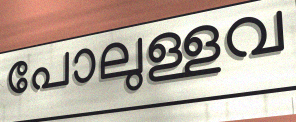
പോലുള്ളവ